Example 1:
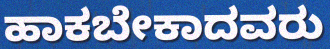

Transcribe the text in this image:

ಹಾಕಬೇಕಾದವರು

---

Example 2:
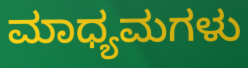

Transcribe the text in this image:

ಮಾಧ್ಯಮಗಳು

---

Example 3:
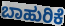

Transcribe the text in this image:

ಬಾಹುರಿಕೆ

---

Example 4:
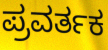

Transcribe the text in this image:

ಪ್ರವರ್ತಕ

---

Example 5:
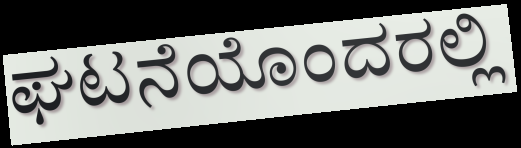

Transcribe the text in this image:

ಘಟನೆಯೊಂದರಲ್ಲಿ